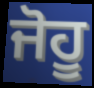
ਜੋਹੂ